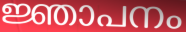
ജ്ഞാപനം